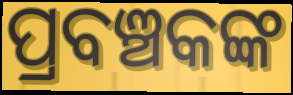
ପ୍ରବଞ୍ଚକଙ୍କ